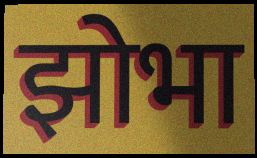
झोभा